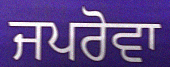
ਜਪਰੋਵਾ